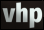
vhp